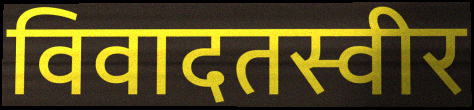
विवादतस्वीर